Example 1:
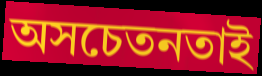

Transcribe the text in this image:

অসচেতনতাই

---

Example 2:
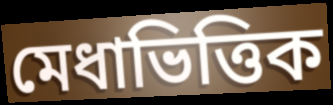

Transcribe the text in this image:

মেধাভিত্তিক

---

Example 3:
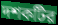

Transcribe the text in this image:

দশকটির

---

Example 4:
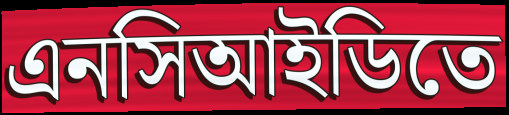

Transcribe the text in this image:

এনসিআইডিতে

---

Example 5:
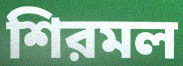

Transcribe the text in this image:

শিরমল